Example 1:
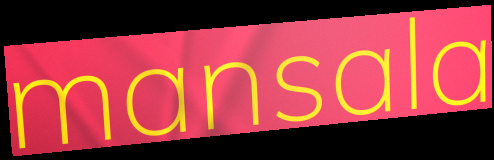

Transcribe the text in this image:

mansala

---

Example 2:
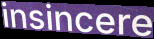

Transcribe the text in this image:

insincere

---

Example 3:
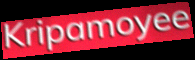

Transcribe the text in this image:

Kripamoyee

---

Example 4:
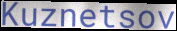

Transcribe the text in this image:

Kuznetsov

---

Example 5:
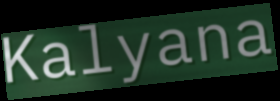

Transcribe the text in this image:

Kalyana